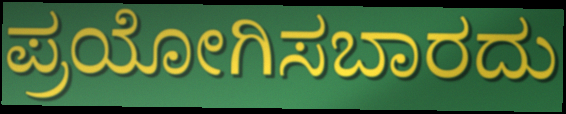
ಪ್ರಯೋಗಿಸಬಾರದು